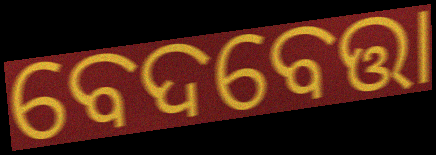
ବେଦବେତ୍ତା